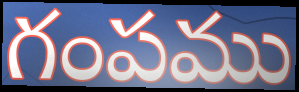
గంపము